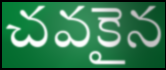
చవకైన